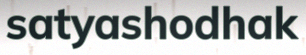
satyashodhak